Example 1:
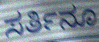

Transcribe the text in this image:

ಸರ್ತಿನೂ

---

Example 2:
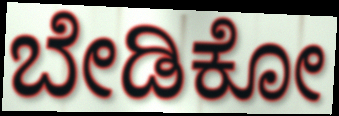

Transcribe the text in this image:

ಬೇಡಿಕೋ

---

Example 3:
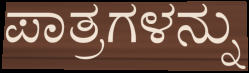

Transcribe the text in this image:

ಪಾತ್ರಗಳನ್ನು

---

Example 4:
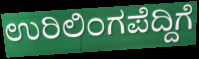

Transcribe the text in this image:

ಉರಿಲಿಂಗಪೆದ್ದಿಗೆ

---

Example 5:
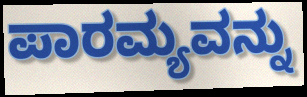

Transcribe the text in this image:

ಪಾರಮ್ಯವನ್ನು